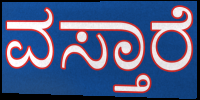
ವಸ್ತಾರೆ